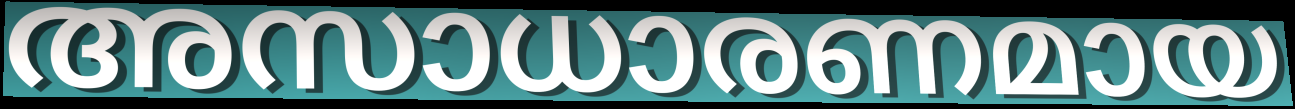
അസാധാരണമായ